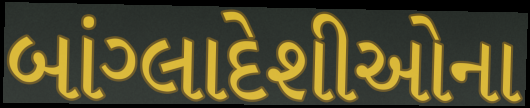
બાંગ્લાદેશીઓના